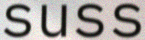
suss